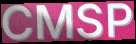
CMSP